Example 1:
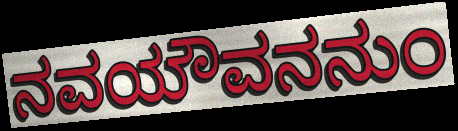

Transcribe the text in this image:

ನವಯೌವನನುಂ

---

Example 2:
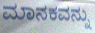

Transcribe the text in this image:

ಮಾನಕವನ್ನು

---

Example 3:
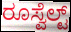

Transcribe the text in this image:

ರೂಸ್ವೆಲ್ಟ್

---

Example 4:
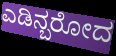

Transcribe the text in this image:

ಎಡಿನ್ಬರೋದ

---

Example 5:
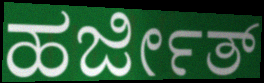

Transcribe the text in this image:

ಹರ್ಜೀತ್